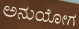
ಅನುಯೋಗ